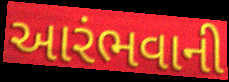
આરંભવાની